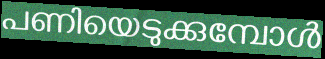
പണിയെടുക്കുമ്പോൾ